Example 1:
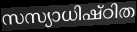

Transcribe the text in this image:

സസ്യാധിഷ്ഠിത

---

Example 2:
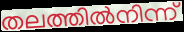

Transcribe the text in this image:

തലത്തിൽനിന്ന്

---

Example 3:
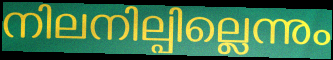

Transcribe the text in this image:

നിലനില്പില്ലെന്നും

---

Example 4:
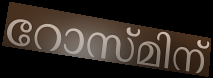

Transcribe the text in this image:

റോസ്മിന്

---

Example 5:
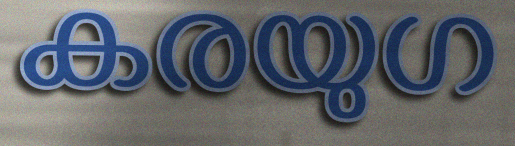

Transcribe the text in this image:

കരയുഗ